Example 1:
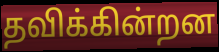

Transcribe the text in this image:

தவிக்கின்றன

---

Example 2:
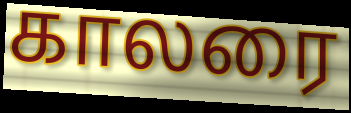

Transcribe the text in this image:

காலரை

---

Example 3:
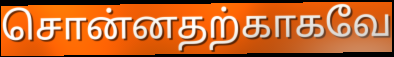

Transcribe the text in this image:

சொன்னதற்காகவே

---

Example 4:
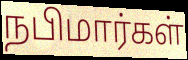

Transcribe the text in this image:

நபிமார்கள்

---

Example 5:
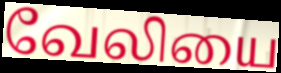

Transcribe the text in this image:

வேலியை